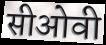
सीओवी